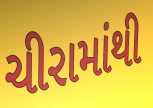
ચીરામાંથી